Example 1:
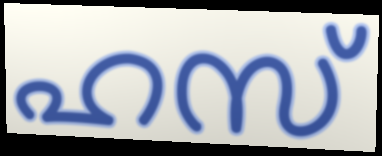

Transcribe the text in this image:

ഹസ്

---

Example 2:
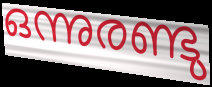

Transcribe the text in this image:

ഒന്നുരണ്ടു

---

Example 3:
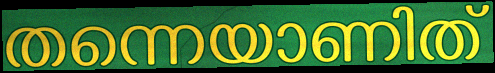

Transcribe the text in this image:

തന്നെയാണിത്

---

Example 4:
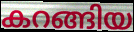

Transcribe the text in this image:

കറങ്ങിയ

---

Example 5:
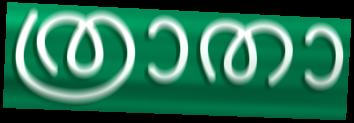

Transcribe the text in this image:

ത്രാതാ